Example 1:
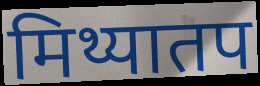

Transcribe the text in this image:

मिथ्यातप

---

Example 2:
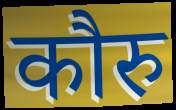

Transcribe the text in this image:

कौरु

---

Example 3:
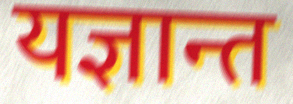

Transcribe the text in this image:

यज्ञान्त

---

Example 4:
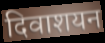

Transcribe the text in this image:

दिवाशयन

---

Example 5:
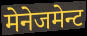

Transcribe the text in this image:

मेनेजमेन्ट